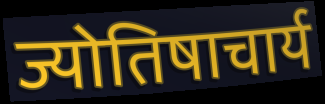
ज्योतिषाचार्य